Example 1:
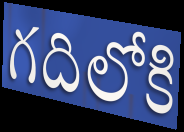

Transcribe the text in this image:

గదిలోకి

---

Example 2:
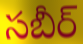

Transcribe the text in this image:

సబీర్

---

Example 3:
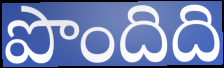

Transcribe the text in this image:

పొందిది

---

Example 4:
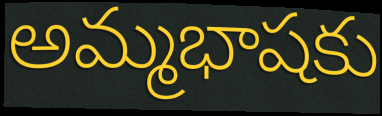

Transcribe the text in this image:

అమ్మభాషకు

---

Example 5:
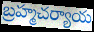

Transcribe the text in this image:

బ్రహ్మచర్యాయ